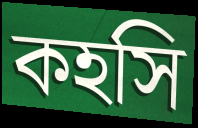
কহসি